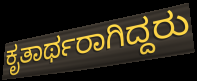
ಕೃತಾರ್ಥರಾಗಿದ್ದರು